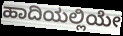
ಹಾದಿಯಲ್ಲಿಯೇ